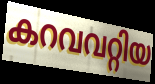
കറവവറ്റിയ